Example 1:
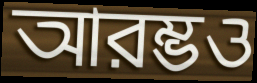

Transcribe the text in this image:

আরম্ভও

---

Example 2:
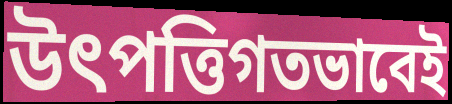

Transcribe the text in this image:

উৎপত্তিগতভাবেই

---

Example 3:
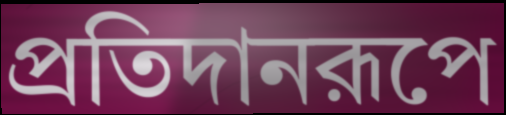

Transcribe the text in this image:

প্রতিদানরূপে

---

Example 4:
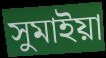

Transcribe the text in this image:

সুমাইয়া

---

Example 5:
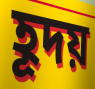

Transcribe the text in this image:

হূদয়